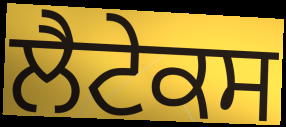
ਲੈਟੇਕਸ